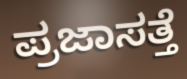
ಪ್ರಜಾಸತ್ತೆ